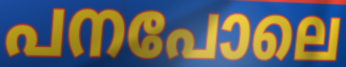
പനപോലെ